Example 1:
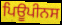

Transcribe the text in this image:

ਪਿਊਪੀਨਸ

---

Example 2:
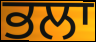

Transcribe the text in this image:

ਭਲਾ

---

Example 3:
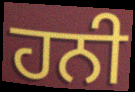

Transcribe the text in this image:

ਹਨੀ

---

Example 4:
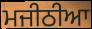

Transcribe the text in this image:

ਮਜੀਠੀਆ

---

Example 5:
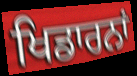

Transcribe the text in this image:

ਖਿਡਾਰਨਾਂ